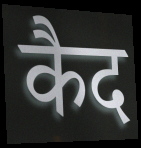
कैद